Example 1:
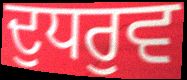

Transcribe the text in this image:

ਦੁਧਰੁਵ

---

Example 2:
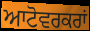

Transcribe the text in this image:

ਆਟੋਵਰਕਰਾਂ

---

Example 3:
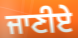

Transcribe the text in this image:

ਜਾਣੀਏ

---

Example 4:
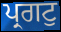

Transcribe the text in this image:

ਪ੍ਰਗਟੁ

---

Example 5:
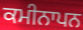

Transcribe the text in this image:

ਕਮੀਨਾਪਨ